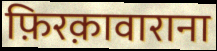
फ़िरक़ावाराना